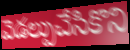
వెడల్పుచేసికొని